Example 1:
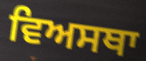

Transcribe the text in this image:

ਵਿਅਸਥਾ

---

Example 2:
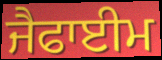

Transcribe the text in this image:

ਜੈਫਾਈਮ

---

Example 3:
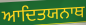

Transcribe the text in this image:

ਆਦਿਤਯਨਾਥ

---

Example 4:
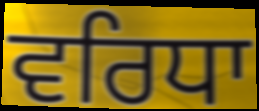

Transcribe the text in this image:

ਵਰਿਧਾ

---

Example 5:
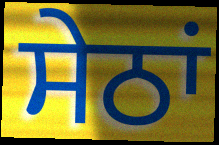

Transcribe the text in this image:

ਸੇਠਾਂ